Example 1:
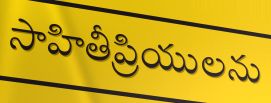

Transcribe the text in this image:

సాహితీప్రియులను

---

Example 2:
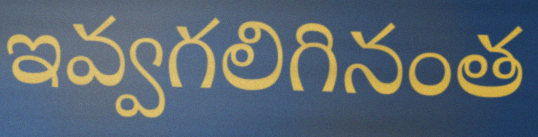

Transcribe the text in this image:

ఇవ్వగలిగినంత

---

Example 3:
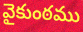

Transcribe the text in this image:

వైకుంఠము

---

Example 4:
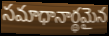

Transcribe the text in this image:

సమాధానార్థమైన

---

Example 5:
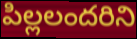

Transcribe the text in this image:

పిల్లలందరిని